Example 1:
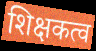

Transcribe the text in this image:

शिक्षकत्व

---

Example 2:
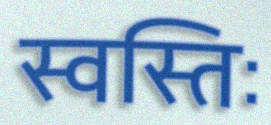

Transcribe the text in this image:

स्वस्तिः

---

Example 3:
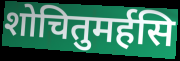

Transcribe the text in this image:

शोचितुमर्हसि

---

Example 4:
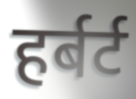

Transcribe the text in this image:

हर्बर्ट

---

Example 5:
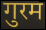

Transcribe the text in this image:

गुरम